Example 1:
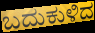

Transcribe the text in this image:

ಬದುಕುಳಿದ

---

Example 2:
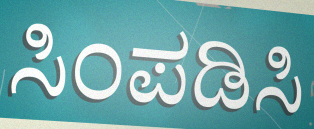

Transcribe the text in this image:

ಸಿಂಪಡಿಸಿ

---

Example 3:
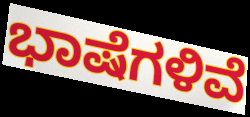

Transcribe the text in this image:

ಭಾಷೆಗಳಿವೆ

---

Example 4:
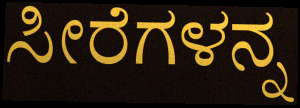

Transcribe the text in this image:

ಸೀರೆಗಳನ್ನ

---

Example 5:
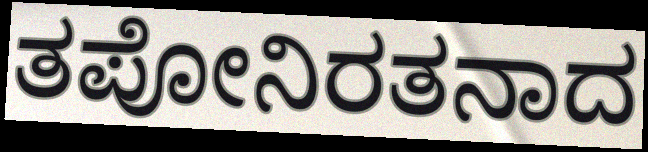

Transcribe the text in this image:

ತಪೋನಿರತನಾದ